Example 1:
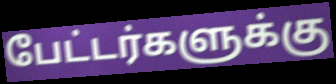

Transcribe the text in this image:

பேட்டர்களுக்கு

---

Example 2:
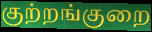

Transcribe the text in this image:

குற்றங்குறை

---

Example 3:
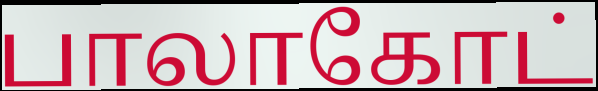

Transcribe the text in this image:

பாலாகோட்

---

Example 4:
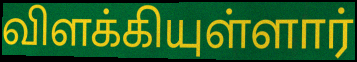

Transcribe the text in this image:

விளக்கியுள்ளார்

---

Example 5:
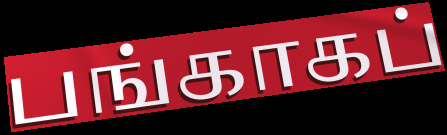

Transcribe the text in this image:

பங்காகப்